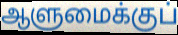
ஆளுமைக்குப்